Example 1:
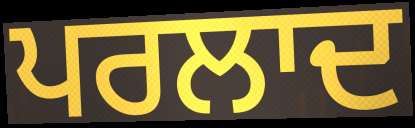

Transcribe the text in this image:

ਪਰਲਾਦ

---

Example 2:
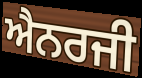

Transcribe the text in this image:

ਐਨਰਜੀ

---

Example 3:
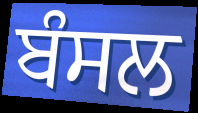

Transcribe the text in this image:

ਬੰਸਲ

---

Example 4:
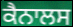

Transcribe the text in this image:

ਕੈਨਾਲਸ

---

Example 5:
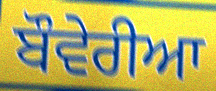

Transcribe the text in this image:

ਬੌਵੇਰੀਆ